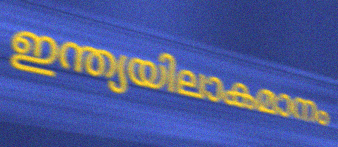
ഇന്ത്യയിലാകമാനം